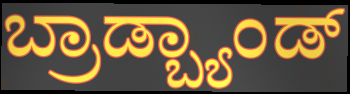
ಬ್ರಾಡ್ಬ್ಯಾಂಡ್